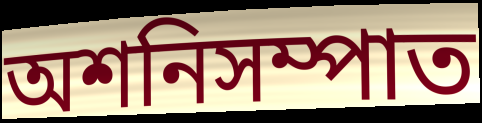
অশনিসম্পাত